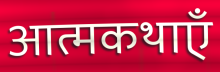
आत्मकथाएँ